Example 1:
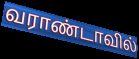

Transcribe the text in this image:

வராண்டாவில்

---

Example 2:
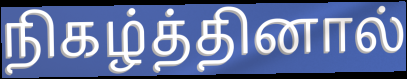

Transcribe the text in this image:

நிகழ்த்தினால்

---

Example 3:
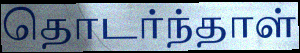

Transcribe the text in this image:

தொடர்ந்தாள்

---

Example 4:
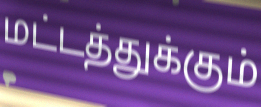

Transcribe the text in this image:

மட்டத்துக்கும்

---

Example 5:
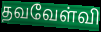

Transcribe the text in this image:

தவவேள்வி